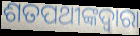
ଶତପଥୀଙ୍କଦ୍ୱାରା